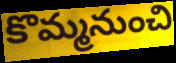
కొమ్మనుంచి